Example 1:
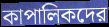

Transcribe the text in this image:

কাপালিকদের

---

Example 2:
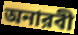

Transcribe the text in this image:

অনারবী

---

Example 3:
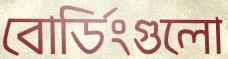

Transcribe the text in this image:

বোর্ডিংগুলো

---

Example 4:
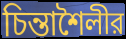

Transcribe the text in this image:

চিন্তাশৈলীর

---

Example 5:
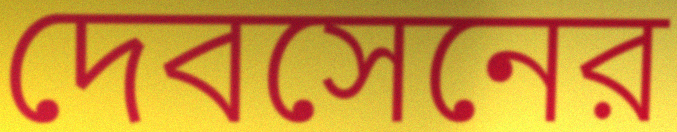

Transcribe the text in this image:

দেবসেনের